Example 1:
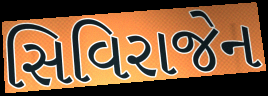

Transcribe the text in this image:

સિવિરાજેન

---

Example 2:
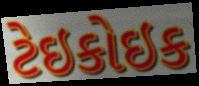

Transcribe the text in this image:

ટેઇકોઇક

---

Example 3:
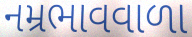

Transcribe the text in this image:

નમ્રભાવવાળા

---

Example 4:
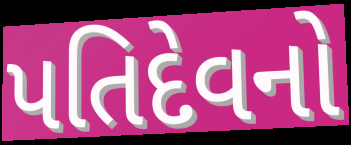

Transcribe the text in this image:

પતિદેવનો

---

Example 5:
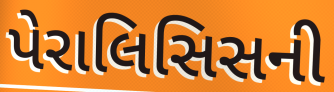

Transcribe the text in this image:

પેરાલિસિસની